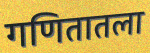
गणितातला